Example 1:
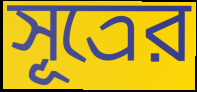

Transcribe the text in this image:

সূত্রের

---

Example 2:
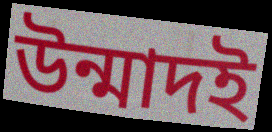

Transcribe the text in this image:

উন্মাদই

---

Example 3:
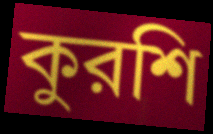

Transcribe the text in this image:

কুরশি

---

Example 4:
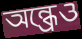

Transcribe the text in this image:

অন্ধ্রেও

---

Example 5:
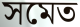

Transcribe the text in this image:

সমেত